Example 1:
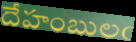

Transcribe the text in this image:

దేహంబులఁ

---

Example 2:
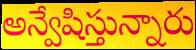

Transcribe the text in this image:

అన్వేషిస్తున్నారు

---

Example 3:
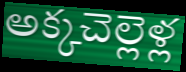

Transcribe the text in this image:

అక్కచెల్లెళ్ల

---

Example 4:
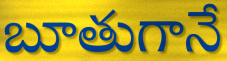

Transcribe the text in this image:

బూతుగానే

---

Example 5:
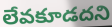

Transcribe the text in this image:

లేవకూడదని